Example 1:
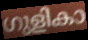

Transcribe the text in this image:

ഗുളികാ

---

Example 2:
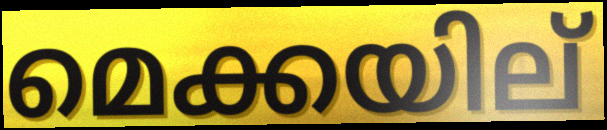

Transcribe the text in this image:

മെക്കയില്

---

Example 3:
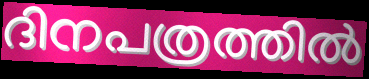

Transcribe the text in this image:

ദിനപത്രത്തിൽ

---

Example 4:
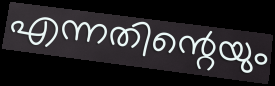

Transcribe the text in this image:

എന്നതിന്റെയും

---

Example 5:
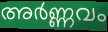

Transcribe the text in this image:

അർണ്ണവം